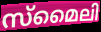
സ്മൈലി